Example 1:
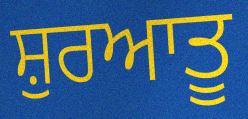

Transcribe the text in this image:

ਸ਼ੁਰਆਤੂ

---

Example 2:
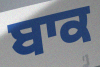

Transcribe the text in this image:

ਬਾਕ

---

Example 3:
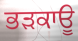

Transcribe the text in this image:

ਭੜਕਾਊ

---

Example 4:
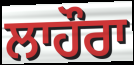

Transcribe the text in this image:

ਲਾਹੌਰਾ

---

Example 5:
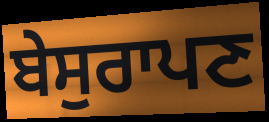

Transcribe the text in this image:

ਬੇਸੁਰਾਪਣ